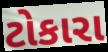
ટોકારા